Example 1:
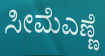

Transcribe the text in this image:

ಸೀಮೆಎಣ್ಣೆ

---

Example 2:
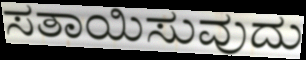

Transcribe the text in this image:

ಸತಾಯಿಸುವುದು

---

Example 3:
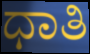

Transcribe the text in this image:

ಧಾತಿ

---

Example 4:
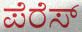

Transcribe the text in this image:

ಪೆರೆಸ್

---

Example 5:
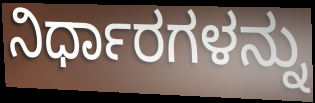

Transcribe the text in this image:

ನಿರ್ಧಾರಗಳನ್ನು